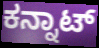
ಕನ್ನಾಟ್